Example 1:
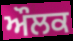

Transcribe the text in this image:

ਔਲਕ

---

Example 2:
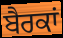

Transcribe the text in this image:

ਬੈਰਕਾਂ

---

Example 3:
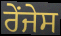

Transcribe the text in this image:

ਰੇਂਜੇਸ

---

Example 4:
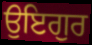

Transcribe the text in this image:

ਉਇਗੁਰ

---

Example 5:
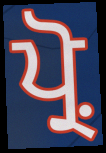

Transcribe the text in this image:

ਪ੍ਰ਼ੋ